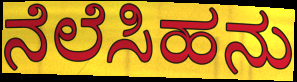
ನೆಲೆಸಿಹನು